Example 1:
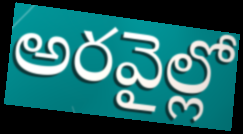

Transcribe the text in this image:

అరవైల్లో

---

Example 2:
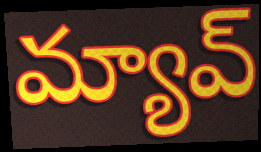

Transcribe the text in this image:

మ్యావ్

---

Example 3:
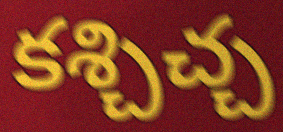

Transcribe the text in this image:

కశ్చిచ్చ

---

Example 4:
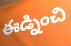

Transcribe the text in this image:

ఈడ్నించి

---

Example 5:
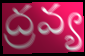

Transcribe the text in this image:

ద్రవ్య